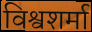
विश्वशर्मा